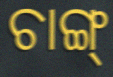
ଚାଙ୍ଗ୍